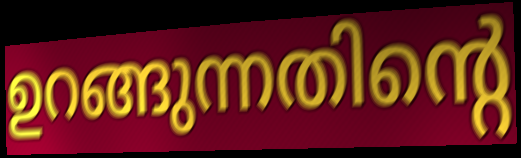
ഉറങ്ങുന്നതിന്റെ